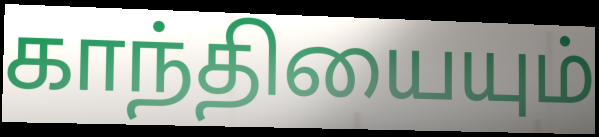
காந்தியையும்